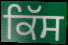
ਕਿੱਸ